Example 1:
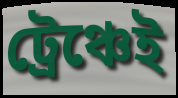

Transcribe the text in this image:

ট্রেঞ্চেই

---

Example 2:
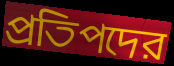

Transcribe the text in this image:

প্রতিপদের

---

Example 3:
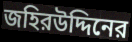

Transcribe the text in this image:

জহিরউদ্দিনের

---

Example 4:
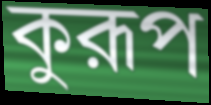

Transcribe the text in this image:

কুরূপ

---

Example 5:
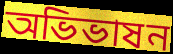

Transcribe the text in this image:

অভিভাষন